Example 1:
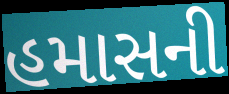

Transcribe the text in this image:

હમાસની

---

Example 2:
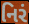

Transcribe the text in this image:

નિરં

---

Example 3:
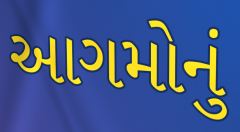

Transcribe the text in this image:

આગમોનું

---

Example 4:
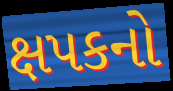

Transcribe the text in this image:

ક્ષપકનો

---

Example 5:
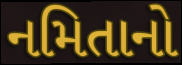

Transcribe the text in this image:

નમિતાનો